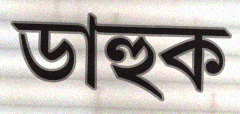
ডাহুক